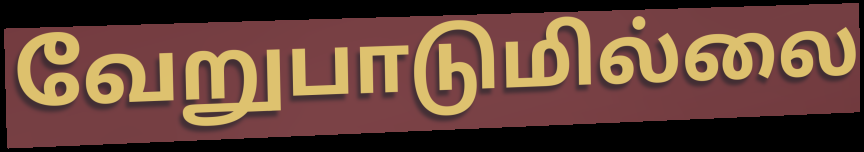
வேறுபாடுமில்லை